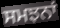
ਸਮਝਨਾਂ